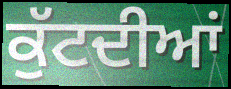
ਕੁੱਟਦੀਆਂ